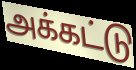
அக்கட்டு